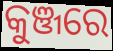
କୁଞ୍ଜରେ